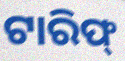
ଟାରିଫ୍